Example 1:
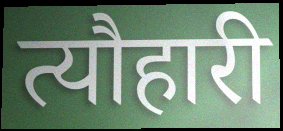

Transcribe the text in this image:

त्यौहारी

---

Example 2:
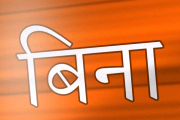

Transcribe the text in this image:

बिना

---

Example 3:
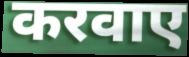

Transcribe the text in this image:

करवाए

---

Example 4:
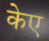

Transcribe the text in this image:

केए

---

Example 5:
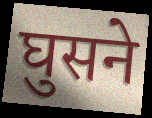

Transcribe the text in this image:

घुसने